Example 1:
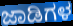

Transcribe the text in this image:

ಜಾಡಿಗಳ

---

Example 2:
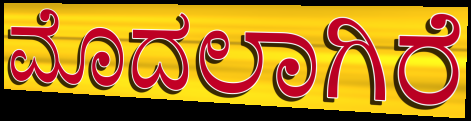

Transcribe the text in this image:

ಮೊದಲಾಗಿರೆ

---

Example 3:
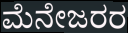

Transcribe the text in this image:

ಮೆನೇಜರರ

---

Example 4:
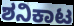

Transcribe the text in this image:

ಶನಿಕಾಟ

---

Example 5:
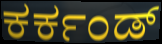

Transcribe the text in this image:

ಕರ್ಕಂಡ್